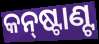
କନ୍‌ଷ୍ଟାଣ୍ଟ